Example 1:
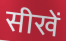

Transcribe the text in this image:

सीखें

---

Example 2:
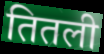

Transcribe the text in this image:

तितली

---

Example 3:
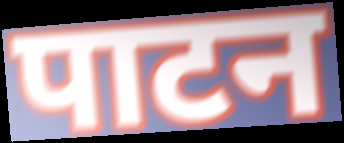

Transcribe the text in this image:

पाटन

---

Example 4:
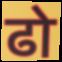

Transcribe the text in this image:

ढो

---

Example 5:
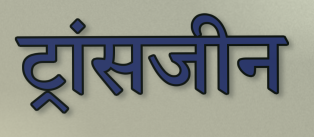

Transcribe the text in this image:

ट्रांसजीन